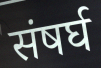
संषर्घ